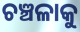
ଚଞ୍ଚଳାକୁ